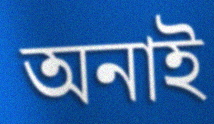
অনাই